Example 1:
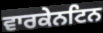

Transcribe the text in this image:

ਵਾਰਕੇਨਟਿਨ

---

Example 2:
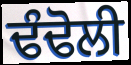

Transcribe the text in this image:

ਢੰਢੋਲੀ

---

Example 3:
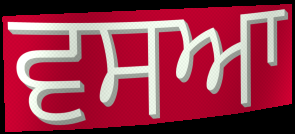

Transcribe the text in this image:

ਵਸਆ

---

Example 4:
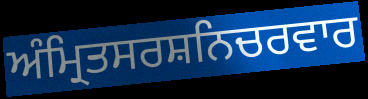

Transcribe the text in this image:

ਅੰਮ੍ਰਿਤਸਰਸ਼ਨਿਚਰਵਾਰ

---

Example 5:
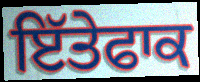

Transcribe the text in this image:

ਇੱਤੇਫਾਕ